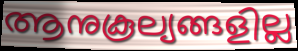
ആനുകൂല്യങ്ങളില്ല